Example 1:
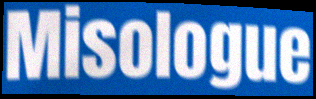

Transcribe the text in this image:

Misologue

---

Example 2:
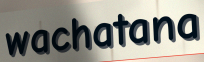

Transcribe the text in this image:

wachatana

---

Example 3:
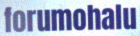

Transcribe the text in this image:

forumohalu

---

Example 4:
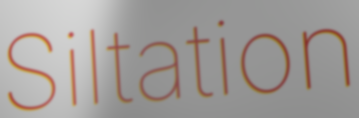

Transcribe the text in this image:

Siltation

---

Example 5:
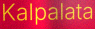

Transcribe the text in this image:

Kalpalata